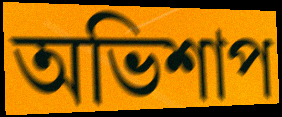
অভিশাপ